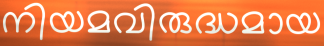
നിയമവിരുദ്ധമായ